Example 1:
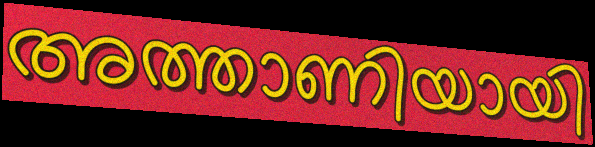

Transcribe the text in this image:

അത്താണിയായി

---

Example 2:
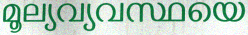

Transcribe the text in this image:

മൂല്യവ്യവസ്ഥയെ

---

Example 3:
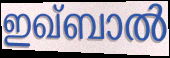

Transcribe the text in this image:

ഇഖ്ബാൽ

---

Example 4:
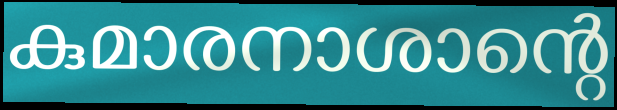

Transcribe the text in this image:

കുമാരനാശാന്റെ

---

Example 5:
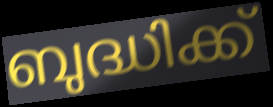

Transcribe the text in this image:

ബുദ്ധിക്ക്